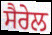
ਸੈਰੇਲ